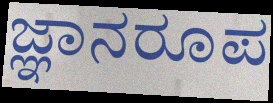
ಜ್ಞಾನರೂಪ